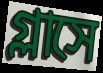
গ্লাসে